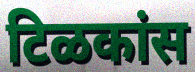
टिळकांस